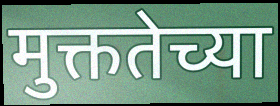
मुक्ततेच्या